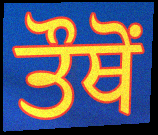
ਤੌਥੋਂ